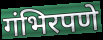
गंभिरपणे